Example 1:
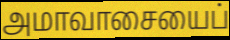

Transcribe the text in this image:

அமாவாசையைப்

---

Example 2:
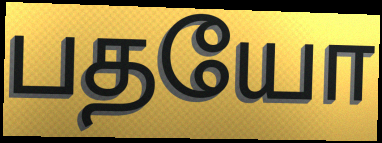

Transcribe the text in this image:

பதயோ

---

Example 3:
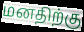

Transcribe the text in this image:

மனதிற்கு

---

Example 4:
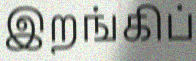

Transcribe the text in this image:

இறங்கிப்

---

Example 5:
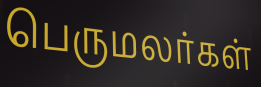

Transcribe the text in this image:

பெருமலர்கள்